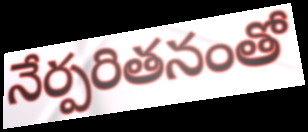
నేర్పరితనంతో